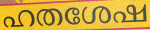
ഹതശേഷ